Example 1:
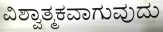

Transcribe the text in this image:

ವಿಶ್ವಾತ್ಮಕವಾಗುವುದು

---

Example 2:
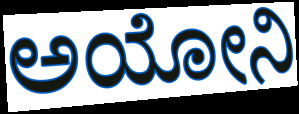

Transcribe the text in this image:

ಅಯೋನಿ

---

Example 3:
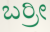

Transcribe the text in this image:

ಬರ್ರೀ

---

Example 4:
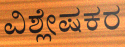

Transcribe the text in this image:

ವಿಶ್ಲೇಷಕರ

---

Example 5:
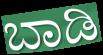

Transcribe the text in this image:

ಬಾಡಿ